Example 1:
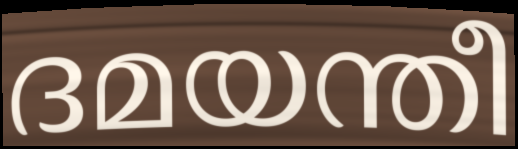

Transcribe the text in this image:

ദമയന്തീ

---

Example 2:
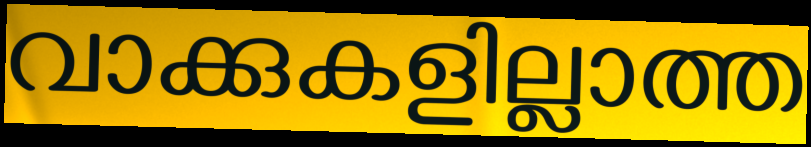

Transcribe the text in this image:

വാക്കുകളില്ലാത്ത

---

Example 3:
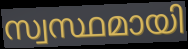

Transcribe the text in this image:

സ്വസ്ഥമായി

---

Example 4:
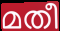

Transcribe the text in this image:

മതീ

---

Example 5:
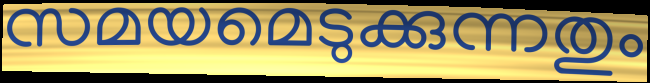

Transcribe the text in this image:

സമയമെടുക്കുന്നതും